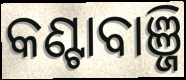
କଣ୍ଟାବାଞ୍ଜି